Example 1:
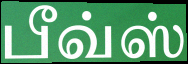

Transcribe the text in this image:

பீவ்ஸ்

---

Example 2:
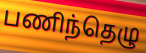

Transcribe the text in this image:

பணிந்தெழு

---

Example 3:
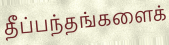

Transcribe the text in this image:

தீப்பந்தங்களைக்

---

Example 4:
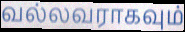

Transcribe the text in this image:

வல்லவராகவும்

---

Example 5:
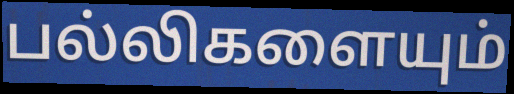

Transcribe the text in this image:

பல்லிகளையும்